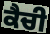
ਕੈਚੀ